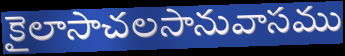
కైలాసాచలసానువాసము